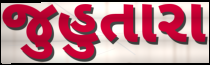
જુહુતારા